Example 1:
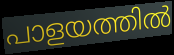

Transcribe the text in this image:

പാളയത്തിൽ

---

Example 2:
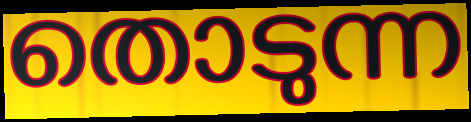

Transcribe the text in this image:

തൊടുന്ന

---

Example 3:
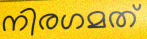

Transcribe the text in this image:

നിരഗമത്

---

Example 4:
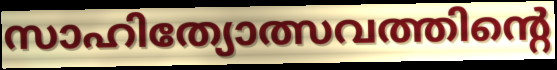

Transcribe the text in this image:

സാഹിത്യോത്സവത്തിന്റെ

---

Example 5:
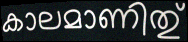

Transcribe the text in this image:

കാലമാണിതു്